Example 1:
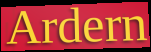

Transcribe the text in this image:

Ardern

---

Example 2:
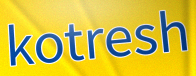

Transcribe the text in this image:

kotresh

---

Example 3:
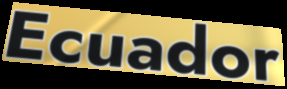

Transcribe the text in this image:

Ecuador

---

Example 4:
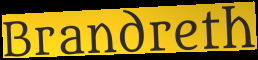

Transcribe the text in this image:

Brandreth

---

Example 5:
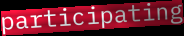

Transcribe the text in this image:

participating